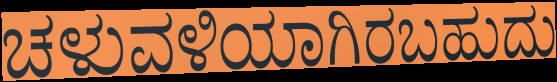
ಚಳುವಳಿಯಾಗಿರಬಹುದು